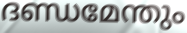
ദണ്ഡമേന്തും